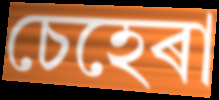
চেহেৰা